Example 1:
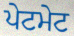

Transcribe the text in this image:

ਪੇਟਮੇਟ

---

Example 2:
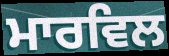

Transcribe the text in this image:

ਮਾਰਵਿਲ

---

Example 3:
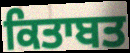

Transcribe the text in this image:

ਕਿਤਾਬਤ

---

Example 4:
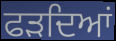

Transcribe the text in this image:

ਫੜਦਿਆਂ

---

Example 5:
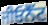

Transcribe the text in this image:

ਜੀਓਨੈੱਟ